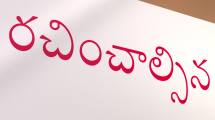
రచించాల్సిన